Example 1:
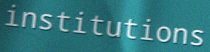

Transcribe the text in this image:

institutions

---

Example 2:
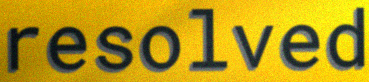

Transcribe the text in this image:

resolved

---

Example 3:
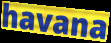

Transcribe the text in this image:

havana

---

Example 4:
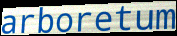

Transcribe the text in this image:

arboretum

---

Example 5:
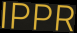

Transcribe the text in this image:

IPPR